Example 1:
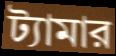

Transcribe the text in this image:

ট্যামার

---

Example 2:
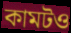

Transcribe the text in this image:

কামটও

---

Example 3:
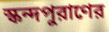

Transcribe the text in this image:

স্কন্দপুরাণের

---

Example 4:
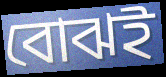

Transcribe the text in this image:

বোঝই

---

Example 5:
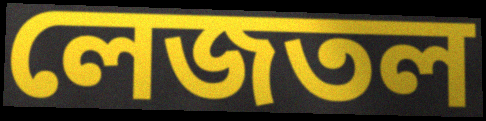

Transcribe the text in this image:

লেজতল